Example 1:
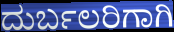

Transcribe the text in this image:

ದುರ್ಬಲರಿಗಾಗಿ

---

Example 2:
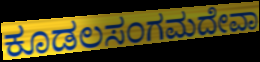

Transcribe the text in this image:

ಕೂಡಲಸಂಗಮದೇವಾ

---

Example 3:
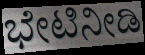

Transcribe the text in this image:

ಭೇಟಿನೀಡಿ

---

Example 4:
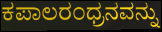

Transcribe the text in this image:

ಕಪಾಲರಂಧ್ರನವನ್ನು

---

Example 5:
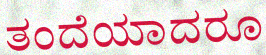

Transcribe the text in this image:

ತಂದೆಯಾದರೂ